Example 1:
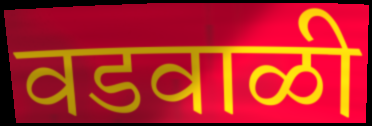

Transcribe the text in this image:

वडवाळी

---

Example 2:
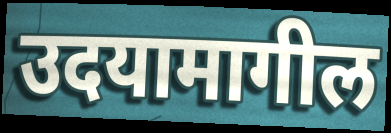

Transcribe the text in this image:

उदयामागील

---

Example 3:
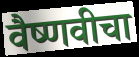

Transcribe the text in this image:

वैष्णवीचा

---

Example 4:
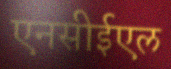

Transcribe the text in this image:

एनसीईएल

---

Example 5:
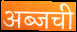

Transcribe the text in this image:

अब्जची